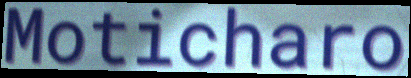
Moticharo